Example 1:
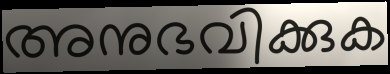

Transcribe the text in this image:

അനുഭവിക്കുക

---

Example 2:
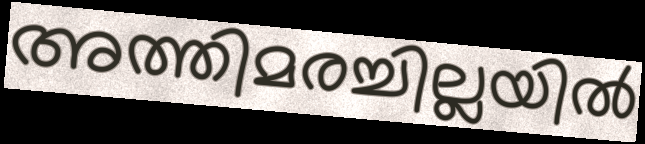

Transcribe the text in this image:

അത്തിമരച്ചില്ലയിൽ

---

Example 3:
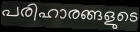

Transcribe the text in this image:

പരിഹാരങ്ങളുടെ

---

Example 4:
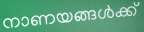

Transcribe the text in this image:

നാണയങ്ങൾക്ക്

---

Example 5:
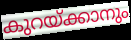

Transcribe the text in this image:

കുറയ്ക്കാനും